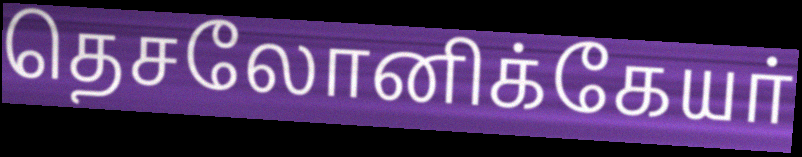
தெசலோனிக்கேயர்